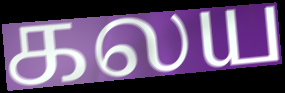
கலய